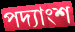
পদ্যাংশ